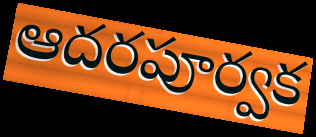
ఆదరపూర్వక